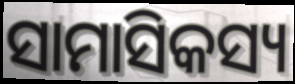
ସାମାସିକସ୍ୟ